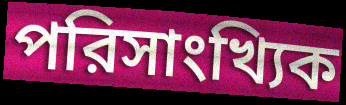
পরিসাংখ্যিক